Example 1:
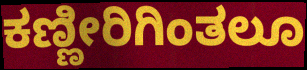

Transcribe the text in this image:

ಕಣ್ಣೀರಿಗಿಂತಲೂ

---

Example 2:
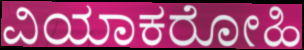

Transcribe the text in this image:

ವಿಯಾಕರೋಹಿ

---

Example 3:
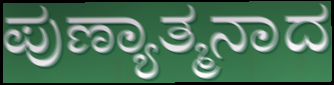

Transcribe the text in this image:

ಪುಣ್ಯಾತ್ಮನಾದ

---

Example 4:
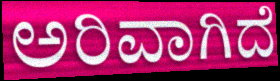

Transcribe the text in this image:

ಅರಿವಾಗಿದೆ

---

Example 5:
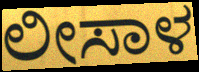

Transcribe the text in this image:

ಲೀಸಾಳ